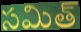
సమిత్